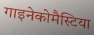
गाइनेकोमैस्टिया